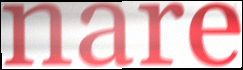
nare